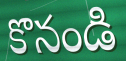
కొనండి